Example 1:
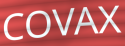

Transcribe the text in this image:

COVAX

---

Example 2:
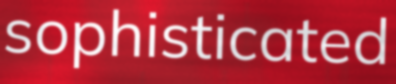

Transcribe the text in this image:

sophisticated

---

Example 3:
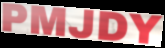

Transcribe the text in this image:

PMJDY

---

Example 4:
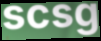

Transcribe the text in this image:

scsg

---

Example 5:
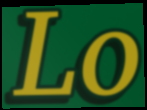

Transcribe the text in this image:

Lo